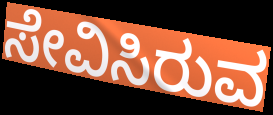
ಸೇವಿಸಿರುವ